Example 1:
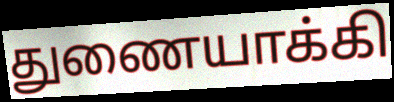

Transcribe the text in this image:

துணையாக்கி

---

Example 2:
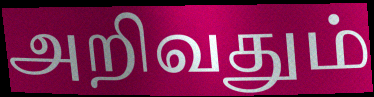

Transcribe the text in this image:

அறிவதும்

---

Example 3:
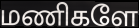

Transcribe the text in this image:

மணிகளே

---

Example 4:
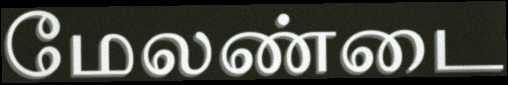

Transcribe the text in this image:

மேலண்டை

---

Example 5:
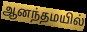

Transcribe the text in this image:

ஆனந்தமயில்